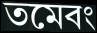
তমেবং